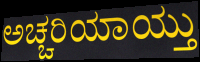
ಅಚ್ಚರಿಯಾಯ್ತು